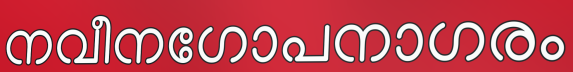
നവീനഗോപനാഗരം